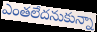
ఎంతలేదనుకున్నా